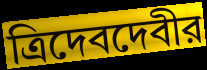
ত্রিদেবদেবীর